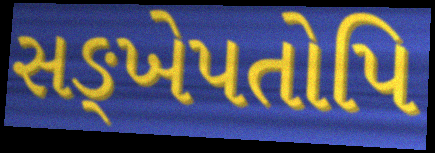
સઙ્ખેપતોપિ